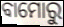
ବାମୋରୁ